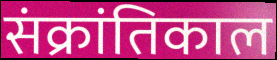
संक्रांतिकाल